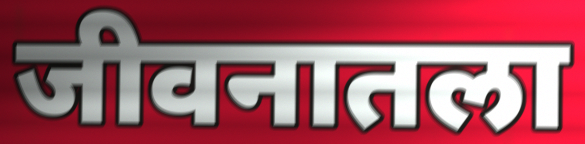
जीवनातला